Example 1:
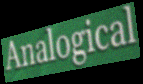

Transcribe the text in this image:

Analogical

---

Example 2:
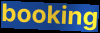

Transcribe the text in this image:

booking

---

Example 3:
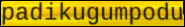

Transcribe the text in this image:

padikugumpodu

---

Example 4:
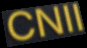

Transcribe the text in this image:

CNII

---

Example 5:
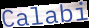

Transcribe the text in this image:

Calabi